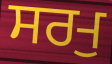
ਸਰ੍ਮੁ